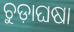
ଚୁଡ଼ାଘଷା